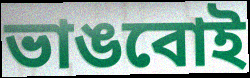
ভাঙবোই